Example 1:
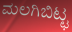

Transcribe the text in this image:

ಮಲಗಿಬಿಟ್ಟ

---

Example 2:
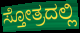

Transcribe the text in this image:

ಸ್ತೋತ್ರದಲ್ಲಿ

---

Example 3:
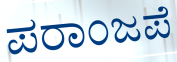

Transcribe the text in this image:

ಪರಾಂಜಪೆ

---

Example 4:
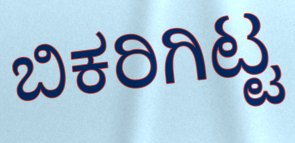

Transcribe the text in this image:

ಬಿಕರಿಗಿಟ್ಟ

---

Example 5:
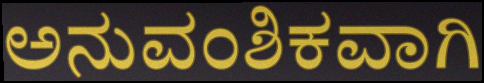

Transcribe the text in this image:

ಅನುವಂಶಿಕವಾಗಿ